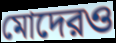
মোদেরও